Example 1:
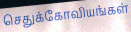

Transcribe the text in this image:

செதுக்கோவியங்கள்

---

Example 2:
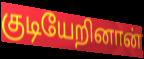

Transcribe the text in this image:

குடியேறினான்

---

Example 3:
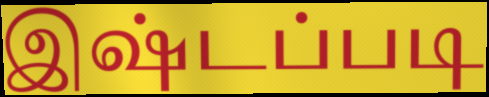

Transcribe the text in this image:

இஷ்டப்படி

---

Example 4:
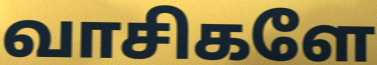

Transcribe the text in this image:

வாசிகளே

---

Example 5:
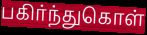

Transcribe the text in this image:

பகிர்ந்துகொள்